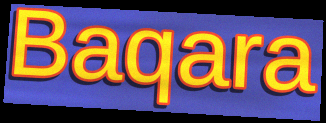
Baqara